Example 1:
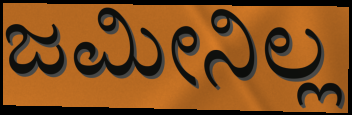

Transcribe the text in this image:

ಜಮೀನಿಲ್ಲ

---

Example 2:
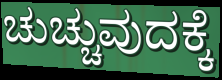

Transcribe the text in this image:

ಚುಚ್ಚುವುದಕ್ಕೆ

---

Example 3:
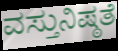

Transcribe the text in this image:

ವಸ್ತುನಿಷ್ಠತೆ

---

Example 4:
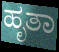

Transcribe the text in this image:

ಹೃತಾ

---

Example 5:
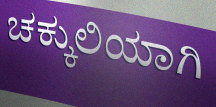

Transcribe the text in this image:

ಚಕ್ಕುಲಿಯಾಗಿ